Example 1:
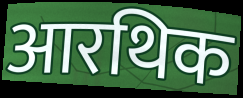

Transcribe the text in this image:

आरथिक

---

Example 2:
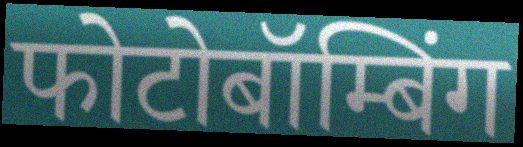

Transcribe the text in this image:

फोटोबॉम्बिंग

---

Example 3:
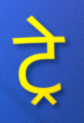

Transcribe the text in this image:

ट्रे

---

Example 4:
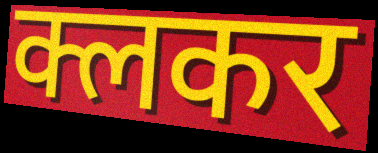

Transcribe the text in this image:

क्लकर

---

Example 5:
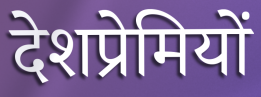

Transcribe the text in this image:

देशप्रेमियों